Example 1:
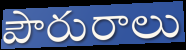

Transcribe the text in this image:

పౌరురాలు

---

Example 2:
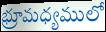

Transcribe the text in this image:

భ్రూమధ్యములో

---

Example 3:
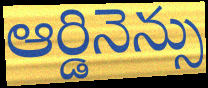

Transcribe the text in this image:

ఆర్డినెన్సు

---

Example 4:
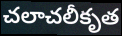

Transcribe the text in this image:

చలాచలీకృత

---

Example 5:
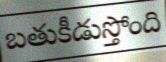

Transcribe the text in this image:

బతుకీడుస్తోంది